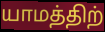
யாமத்திற்